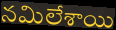
నమిలేశాయి